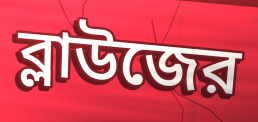
ব্লাউজের